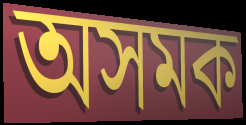
অসমক